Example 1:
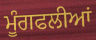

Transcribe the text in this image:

ਮੂੰਗਫਲੀਆਂ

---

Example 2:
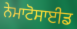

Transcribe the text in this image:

ਨੇਮਾਟੋਸਾਈਡ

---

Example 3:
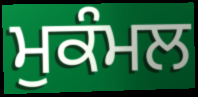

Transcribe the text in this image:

ਮੁਕੰਮਲ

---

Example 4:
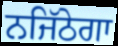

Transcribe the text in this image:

ਨਜਿੱਠੇਗਾ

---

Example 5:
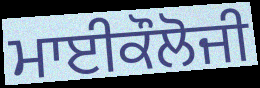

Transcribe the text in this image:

ਮਾਈਕੌਲੋਜੀ